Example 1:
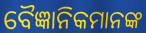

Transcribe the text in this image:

ବୈଜ୍ଞାନିକମାନଙ୍କ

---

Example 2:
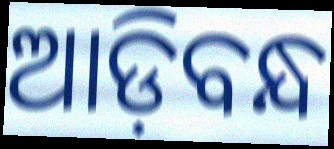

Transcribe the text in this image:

ଆଡ଼ିବନ୍ଧ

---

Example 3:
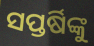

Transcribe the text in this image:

ସପ୍ତର୍ଷିଙ୍କୁ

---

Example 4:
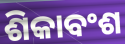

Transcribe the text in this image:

ଶିକାବଂଶ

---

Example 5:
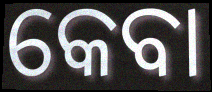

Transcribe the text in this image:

କେବା